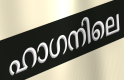
ഹാഗനിലെ